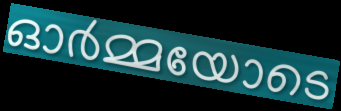
ഓർമ്മയോടെ